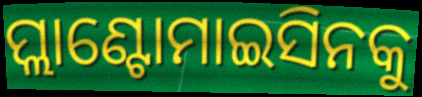
ପ୍ଲାଣ୍ଟୋମାଇସିନକୁ